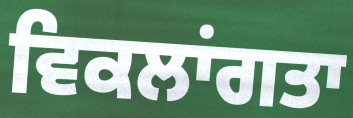
ਵਿਕਲਾਂਗਤਾ